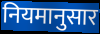
नियमानुसार